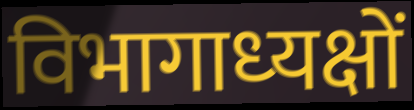
विभागाध्‍यक्षों